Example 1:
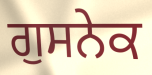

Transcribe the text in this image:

ਗੁਸਨੇਕ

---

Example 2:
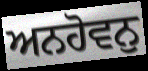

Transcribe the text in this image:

ਅਨਹੋਵਨੁ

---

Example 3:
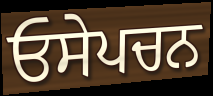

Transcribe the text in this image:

ਓਸੇਪਚਨ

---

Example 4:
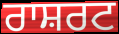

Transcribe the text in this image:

ਰਾਸ਼ਰਟ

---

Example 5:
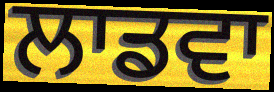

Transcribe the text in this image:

ਲਾਡਵਾ